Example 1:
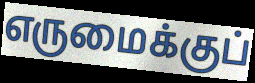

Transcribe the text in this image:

எருமைக்குப்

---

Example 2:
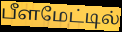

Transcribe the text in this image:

பீளமேட்டில்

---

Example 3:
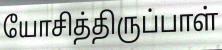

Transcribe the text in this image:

யோசித்திருப்பாள்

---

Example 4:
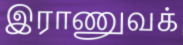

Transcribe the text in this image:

இராணுவக்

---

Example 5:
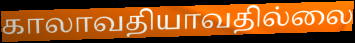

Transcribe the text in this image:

காலாவதியாவதில்லை